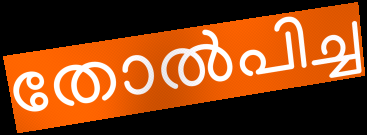
തോൽപിച്ച